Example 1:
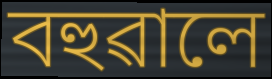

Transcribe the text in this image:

বহুৱালে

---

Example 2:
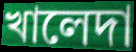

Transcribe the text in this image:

খালেদা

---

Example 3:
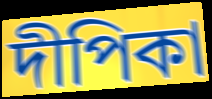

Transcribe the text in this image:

দীপিকা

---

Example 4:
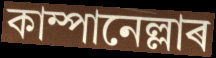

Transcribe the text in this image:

কাম্পানেল্লাৰ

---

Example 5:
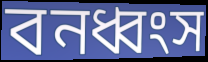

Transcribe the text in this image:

বনধ্বংস